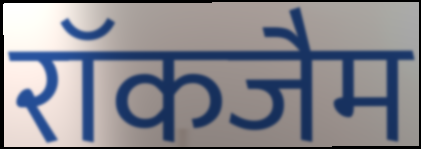
रॉकजैम